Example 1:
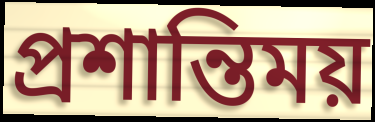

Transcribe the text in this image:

প্রশান্তিময়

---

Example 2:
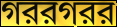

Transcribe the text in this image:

গররগরর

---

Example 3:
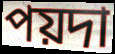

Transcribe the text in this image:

পয়দা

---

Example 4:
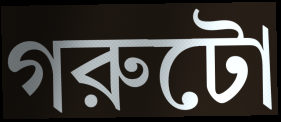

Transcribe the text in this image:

গরুটো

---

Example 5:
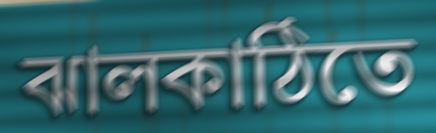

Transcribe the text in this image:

ঝালকাঠিতে